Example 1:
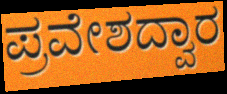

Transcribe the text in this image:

ಪ್ರವೇಶದ್ವಾರ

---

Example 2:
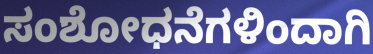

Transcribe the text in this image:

ಸಂಶೋಧನೆಗಳಿಂದಾಗಿ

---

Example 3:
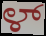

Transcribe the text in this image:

ಳ್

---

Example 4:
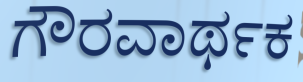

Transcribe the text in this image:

ಗೌರವಾರ್ಥಕ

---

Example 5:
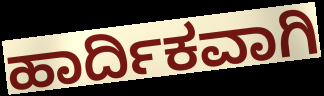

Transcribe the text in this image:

ಹಾರ್ದಿಕವಾಗಿ